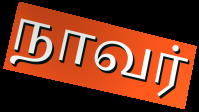
நாவர்